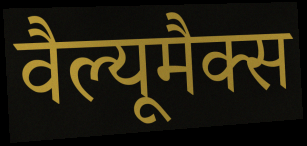
वैल्यूमैक्स